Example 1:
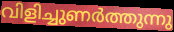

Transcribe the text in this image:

വിളിച്ചുണർത്തുന്നു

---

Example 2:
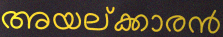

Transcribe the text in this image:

അയല്ക്കാരൻ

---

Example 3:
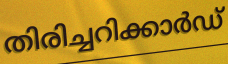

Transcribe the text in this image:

തിരിച്ചറിക്കാർഡ്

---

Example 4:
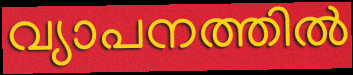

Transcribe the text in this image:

വ്യാപനത്തിൽ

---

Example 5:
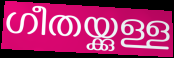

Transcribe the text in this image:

ഗീതയ്ക്കുള്ള